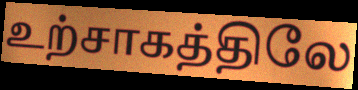
உற்சாகத்திலே